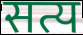
सत्य